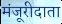
मंजूरीदाता